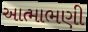
આત્માભણી